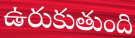
ఉరుకుతుంది